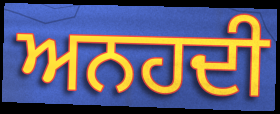
ਅਨਹਦੀ